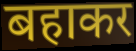
बहाकर